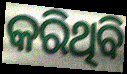
କରିଥିବି